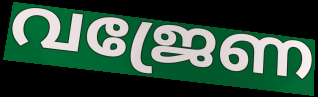
വജ്രേണ